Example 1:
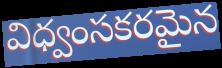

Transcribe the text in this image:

విధ్వంసకరమైన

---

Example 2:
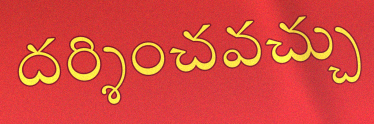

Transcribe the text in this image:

దర్శించవచ్చు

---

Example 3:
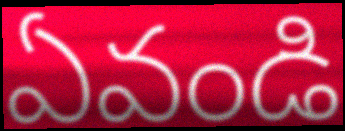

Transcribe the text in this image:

ఏవండి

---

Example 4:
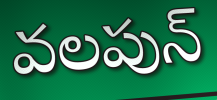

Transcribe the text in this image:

వలపున్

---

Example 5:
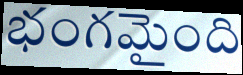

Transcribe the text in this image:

భంగమైంది